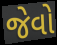
જેવો